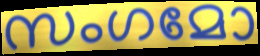
സംഗമോ